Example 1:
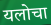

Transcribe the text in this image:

यलोचा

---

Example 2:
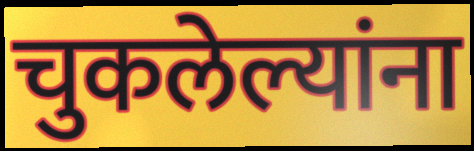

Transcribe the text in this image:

चुकलेल्यांना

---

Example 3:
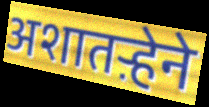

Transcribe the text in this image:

अशातऱ्‍हेने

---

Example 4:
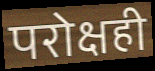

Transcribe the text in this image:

परोक्षही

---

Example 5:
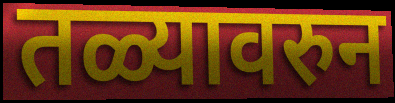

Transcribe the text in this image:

तळ्यावरुन